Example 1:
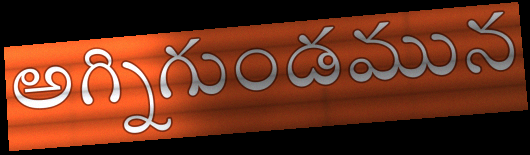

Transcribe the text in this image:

అగ్నిగుండమున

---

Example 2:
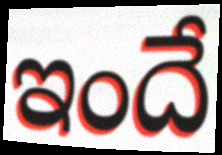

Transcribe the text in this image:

ఇందే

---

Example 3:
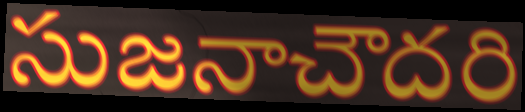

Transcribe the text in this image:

సుజనాచౌదరి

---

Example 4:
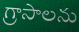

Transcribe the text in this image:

గ్రాసాలను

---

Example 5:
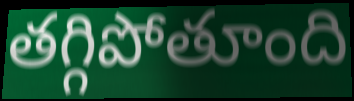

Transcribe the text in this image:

తగ్గిపోతూంది